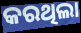
କରଥିଲା